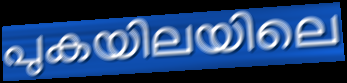
പുകയിലയിലെ